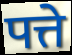
पत्ते